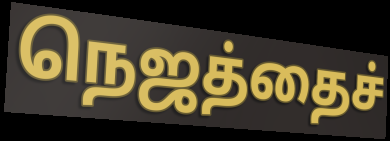
நெஜத்தைச்